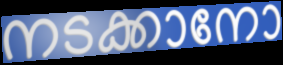
നടക്കാനോ